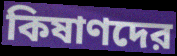
কিষাণদের